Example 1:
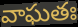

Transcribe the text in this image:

వాఘతః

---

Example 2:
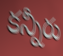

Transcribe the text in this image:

కన్నీరు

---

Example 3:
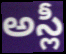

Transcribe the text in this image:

అస్లీ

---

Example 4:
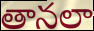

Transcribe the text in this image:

తానలా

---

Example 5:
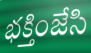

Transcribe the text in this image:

భక్తింజేసి